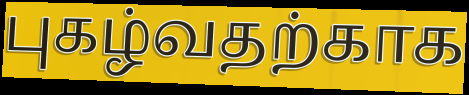
புகழ்வதற்காக